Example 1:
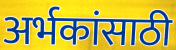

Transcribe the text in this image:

अर्भकांसाठी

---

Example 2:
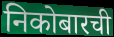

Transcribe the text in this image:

निकोबारची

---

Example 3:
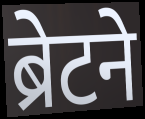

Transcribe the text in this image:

ब्रेटने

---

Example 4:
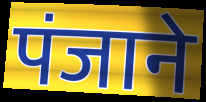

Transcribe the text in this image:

पंजाने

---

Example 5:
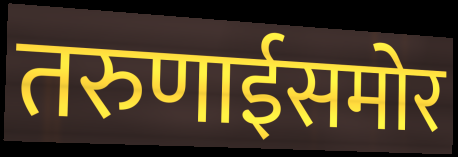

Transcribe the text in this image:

तरुणाईसमोर